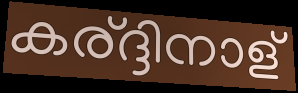
കര്ദ്ദിനാള്